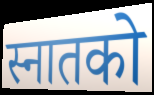
स्नातको